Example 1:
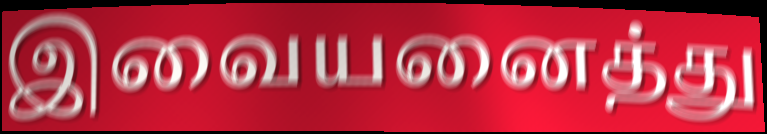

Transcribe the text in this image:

இவையனைத்து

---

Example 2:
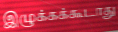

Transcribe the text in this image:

இழுக்கக்கூடாது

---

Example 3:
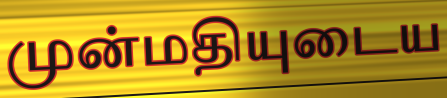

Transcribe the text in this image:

முன்மதியுடைய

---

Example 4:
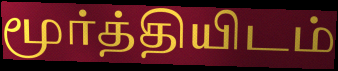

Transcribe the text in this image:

மூர்த்தியிடம்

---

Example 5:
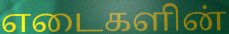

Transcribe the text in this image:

எடைகளின்